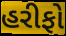
હરીફો